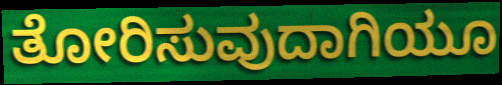
ತೋರಿಸುವುದಾಗಿಯೂ